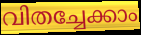
വിതച്ചേക്കാം